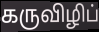
கருவிழிப்